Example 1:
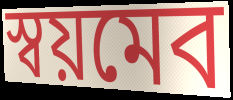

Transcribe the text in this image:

স্বয়মেব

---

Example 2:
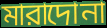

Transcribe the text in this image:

মারাদোনা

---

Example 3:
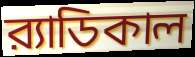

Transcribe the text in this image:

র‍্যাডিকাল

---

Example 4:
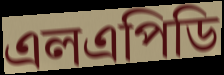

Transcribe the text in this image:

এলএপিডি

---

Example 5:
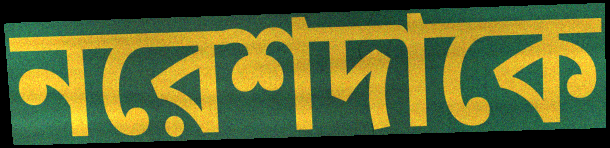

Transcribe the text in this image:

নরেশদাকে